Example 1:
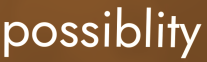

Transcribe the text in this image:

possiblity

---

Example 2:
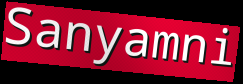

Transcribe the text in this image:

Sanyamni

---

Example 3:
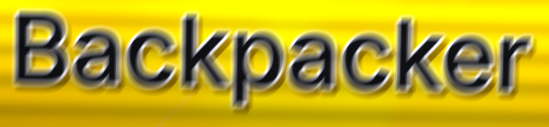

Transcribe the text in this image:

Backpacker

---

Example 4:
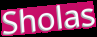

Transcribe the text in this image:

Sholas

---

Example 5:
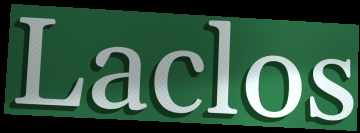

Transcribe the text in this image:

Laclos